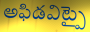
అఫిడవిట్పై